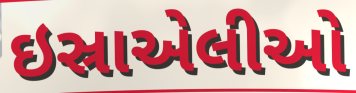
ઇસ્રાએલીઓ